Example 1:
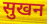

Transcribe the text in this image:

सुखन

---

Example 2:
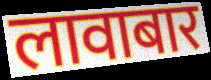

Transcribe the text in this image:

लावाबार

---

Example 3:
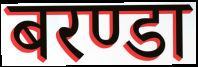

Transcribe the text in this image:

बरण्डा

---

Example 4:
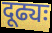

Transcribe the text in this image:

दूढ्यः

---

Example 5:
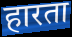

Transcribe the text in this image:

हारता